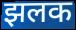
झलक